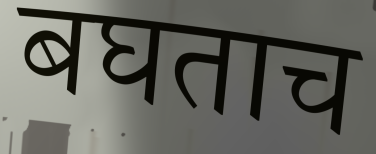
बघताच